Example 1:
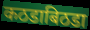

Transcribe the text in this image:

कठडाबिठडा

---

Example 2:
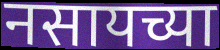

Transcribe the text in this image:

नसायच्या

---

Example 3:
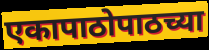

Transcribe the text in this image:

एकापाठोपाठच्या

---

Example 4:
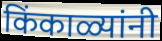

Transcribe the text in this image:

किंकाळ्यांनी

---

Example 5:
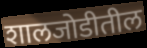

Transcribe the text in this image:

शालजोडीतील